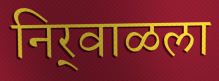
निर्वाळला